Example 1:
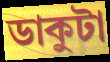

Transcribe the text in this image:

ডাকুটা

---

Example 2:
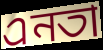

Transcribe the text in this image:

এনতা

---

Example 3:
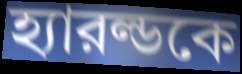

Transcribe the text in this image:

হ্যারল্ডকে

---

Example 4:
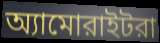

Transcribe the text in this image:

অ্যামোরাইটরা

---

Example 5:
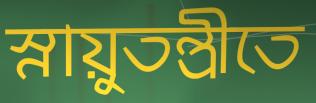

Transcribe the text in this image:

স্নায়ুতন্ত্রীতে